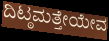
ದಿಟ್ಠಮತ್ತೇಯೇವ